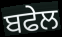
ਬਫੇਲ